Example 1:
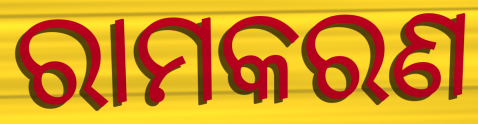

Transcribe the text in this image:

ରାମକରଣ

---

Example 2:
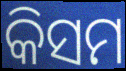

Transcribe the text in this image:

କିସମ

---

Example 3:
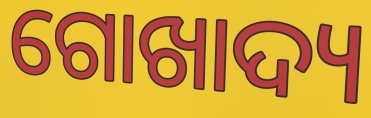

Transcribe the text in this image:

ଗୋଖାଦ୍ୟ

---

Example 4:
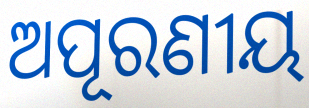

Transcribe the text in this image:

ଅପୂରଣୀୟ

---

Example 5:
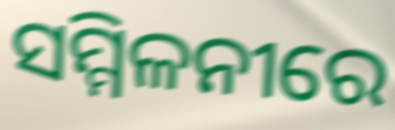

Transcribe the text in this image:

ସମ୍ମିଳନୀରେ